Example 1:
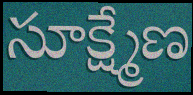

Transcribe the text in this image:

సూక్ష్మేణ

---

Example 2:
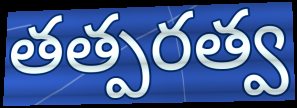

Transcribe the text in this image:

తత్పరత్వ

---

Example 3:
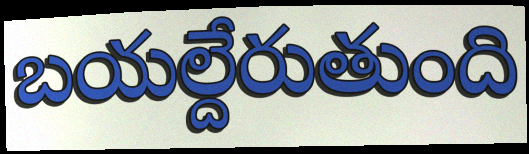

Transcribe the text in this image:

బయల్దేరుతుంది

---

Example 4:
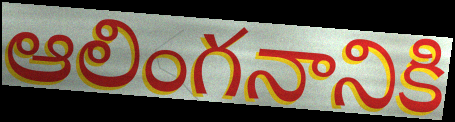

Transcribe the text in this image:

ఆలింగనానికి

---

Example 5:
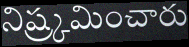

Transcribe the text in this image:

నిష్ర్కమించారు